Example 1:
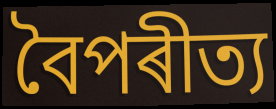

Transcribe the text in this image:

বৈপৰীত্য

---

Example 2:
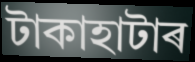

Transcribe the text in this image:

টাকাহাটাৰ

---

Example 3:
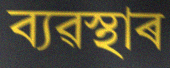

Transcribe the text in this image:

ব্যৱস্থাৰ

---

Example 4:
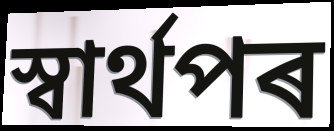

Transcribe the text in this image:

স্বাৰ্থপৰ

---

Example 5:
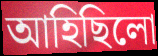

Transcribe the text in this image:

আহিছিলো